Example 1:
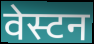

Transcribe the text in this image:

वेस्टन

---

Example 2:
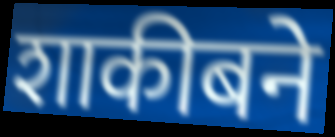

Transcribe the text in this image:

शाकीबने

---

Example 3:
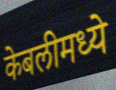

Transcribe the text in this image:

केबलीमध्ये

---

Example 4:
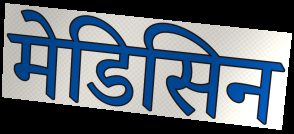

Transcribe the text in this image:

मेडिसिन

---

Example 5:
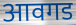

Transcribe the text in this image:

आवगड